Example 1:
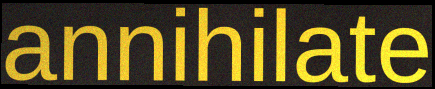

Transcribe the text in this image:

annihilate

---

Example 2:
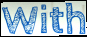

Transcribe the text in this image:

With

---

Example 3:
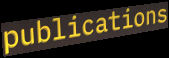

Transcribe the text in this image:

publications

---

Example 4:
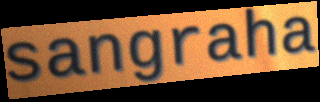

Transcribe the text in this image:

sangraha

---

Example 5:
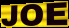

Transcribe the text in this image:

JOE